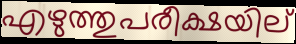
എഴുത്തുപരീക്ഷയില്